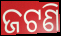
ଜଟଣି